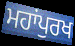
ਮਹਾਂਪੁਰਖ